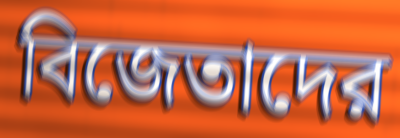
বিজেতাদের